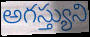
అగస్త్యుని